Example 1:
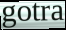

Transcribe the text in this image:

gotra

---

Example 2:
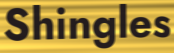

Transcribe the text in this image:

Shingles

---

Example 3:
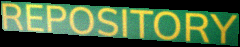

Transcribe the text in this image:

REPOSITORY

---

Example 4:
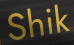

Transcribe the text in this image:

Shik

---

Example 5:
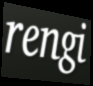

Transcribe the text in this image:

rengi